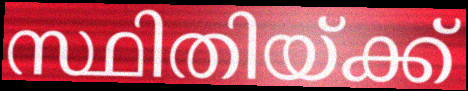
സ്ഥിതിയ്ക്ക്